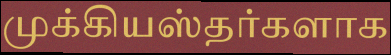
முக்கியஸ்தர்களாக